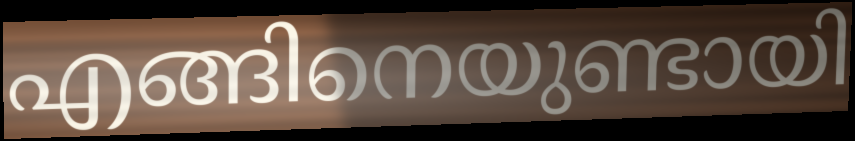
എങ്ങിനെയുണ്ടായി